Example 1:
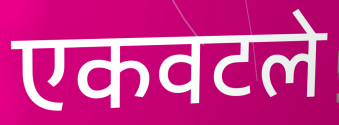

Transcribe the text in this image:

एकवटले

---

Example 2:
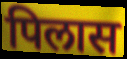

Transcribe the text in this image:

पिलास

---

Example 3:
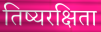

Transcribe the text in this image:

तिष्यरक्षिता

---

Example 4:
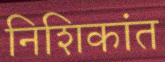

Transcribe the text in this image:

निशिकांत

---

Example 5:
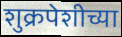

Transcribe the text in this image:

शुक्रपेशीच्या